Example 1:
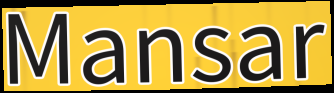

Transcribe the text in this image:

Mansar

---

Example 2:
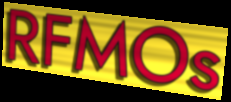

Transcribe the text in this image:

RFMOs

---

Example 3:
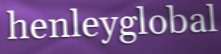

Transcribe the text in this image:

henleyglobal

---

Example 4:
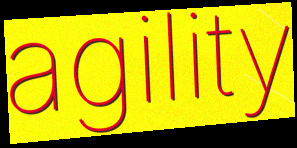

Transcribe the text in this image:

agility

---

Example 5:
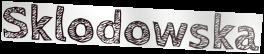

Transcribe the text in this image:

Sklodowska